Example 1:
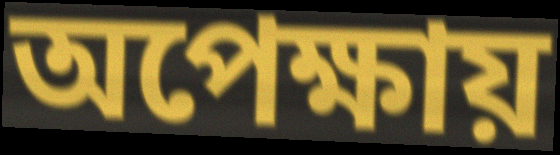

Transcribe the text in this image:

অপেক্ষায়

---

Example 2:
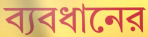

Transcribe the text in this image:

ব্যবধানের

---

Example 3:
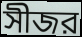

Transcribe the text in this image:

সীজর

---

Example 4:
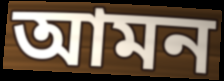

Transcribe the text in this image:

আমন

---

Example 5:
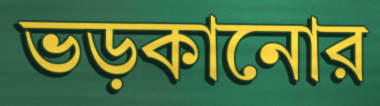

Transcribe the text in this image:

ভড়কানোর